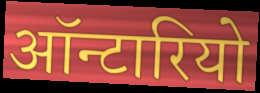
ऑन्टारियो